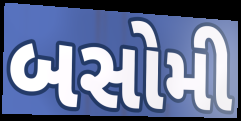
બસોમી